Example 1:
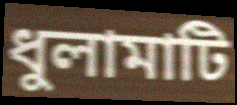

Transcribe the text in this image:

ধুলামাটি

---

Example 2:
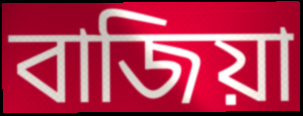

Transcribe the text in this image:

বাজিয়া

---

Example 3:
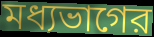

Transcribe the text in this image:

মধ্যভাগের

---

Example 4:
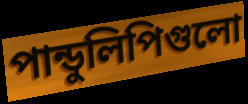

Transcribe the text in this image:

পান্ডুলিপিগুলো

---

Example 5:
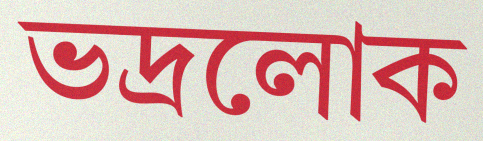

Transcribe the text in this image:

ভদ্রলোক